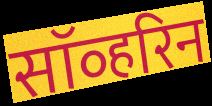
सॉव्हरिन